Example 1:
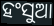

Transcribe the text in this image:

ହଂସୁଆ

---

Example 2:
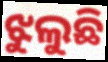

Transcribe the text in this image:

ଝୁଲୁଛି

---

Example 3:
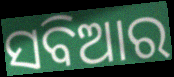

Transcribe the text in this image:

ସବିଆର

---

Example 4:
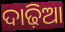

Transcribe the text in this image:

ଦାଢ଼ିଆ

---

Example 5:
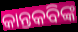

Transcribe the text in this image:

କାନ୍ତକବିଙ୍କ